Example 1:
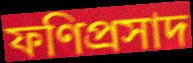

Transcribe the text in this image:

ফণিপ্রসাদ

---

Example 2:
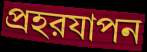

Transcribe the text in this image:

প্রহরযাপন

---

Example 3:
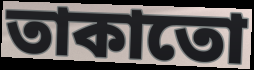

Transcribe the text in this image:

তাকাতো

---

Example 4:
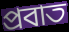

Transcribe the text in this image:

প্রবাত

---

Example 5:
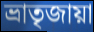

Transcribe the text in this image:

ভ্রাতৃজায়া